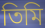
তিমি